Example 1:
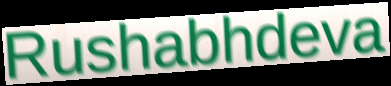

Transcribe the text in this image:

Rushabhdeva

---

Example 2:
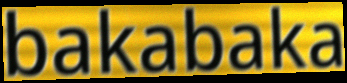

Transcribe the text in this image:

bakabaka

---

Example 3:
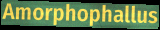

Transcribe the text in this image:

Amorphophallus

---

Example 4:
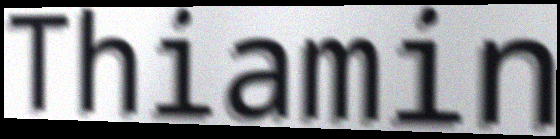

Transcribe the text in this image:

Thiamin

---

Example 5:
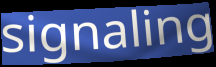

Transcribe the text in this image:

signaling